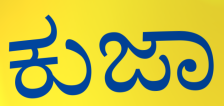
ಕುಜಾ